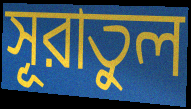
সূরাতুল